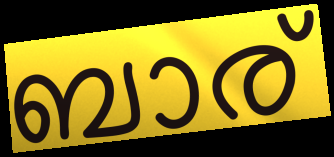
ബാര്